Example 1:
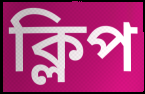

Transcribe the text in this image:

ক্লিপ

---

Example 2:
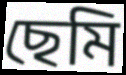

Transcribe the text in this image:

ছেমি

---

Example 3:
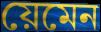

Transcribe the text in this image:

য়েমেন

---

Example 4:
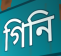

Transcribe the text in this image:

গিনি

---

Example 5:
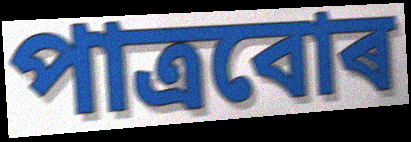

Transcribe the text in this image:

পাত্ৰবোৰ